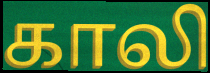
காலி